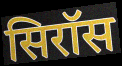
सिरॉस